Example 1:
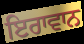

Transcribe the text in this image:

ਇਰਾਵਾਨ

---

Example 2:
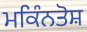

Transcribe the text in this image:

ਮਕਿੰਨਤੋਸ਼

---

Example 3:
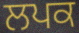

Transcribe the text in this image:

ਲਪਕ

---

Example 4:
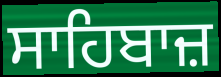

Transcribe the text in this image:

ਸਾਹਿਬਾਜ਼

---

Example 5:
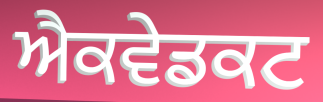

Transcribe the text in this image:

ਐਕਵੇਡਕਟ